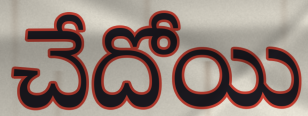
చేదోయి